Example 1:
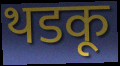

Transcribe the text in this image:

थडकू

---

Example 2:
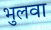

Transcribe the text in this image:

भुलवा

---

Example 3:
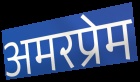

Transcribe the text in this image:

अमरप्रेम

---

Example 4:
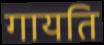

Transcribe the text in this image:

गायति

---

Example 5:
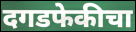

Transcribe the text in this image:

दगडफेकीचा